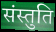
संस्तुति